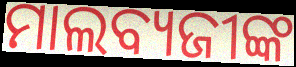
ମାଲବ୍ୟଜୀଙ୍କ